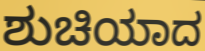
ಶುಚಿಯಾದ